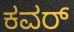
ಕವರ್